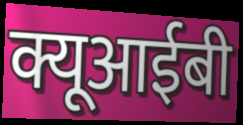
क्यूआईबी